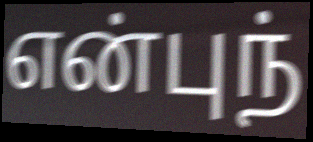
என்புந்